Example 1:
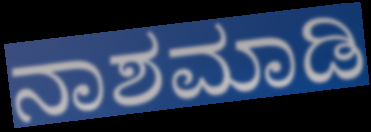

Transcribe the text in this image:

ನಾಶಮಾಡಿ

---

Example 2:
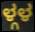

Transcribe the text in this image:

ಳ್ಗಳ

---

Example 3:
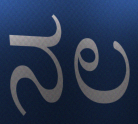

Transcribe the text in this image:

ನಲ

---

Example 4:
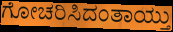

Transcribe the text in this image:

ಗೋಚರಿಸಿದಂತಾಯ್ತು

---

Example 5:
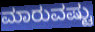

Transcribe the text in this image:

ಮಾರುವಷ್ಟು